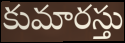
కుమారస్తు